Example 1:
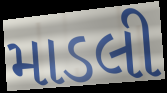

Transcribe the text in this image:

માડલી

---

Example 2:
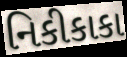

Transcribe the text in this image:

નિકીકાકા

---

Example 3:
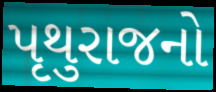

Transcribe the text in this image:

પૃથુરાજનો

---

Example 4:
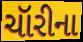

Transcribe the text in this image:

ચૉરીના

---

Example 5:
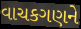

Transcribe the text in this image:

વાચકગણને